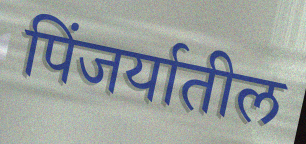
पिंजर्यातील